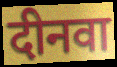
दीनवा